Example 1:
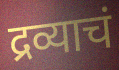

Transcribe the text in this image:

द्रव्याचं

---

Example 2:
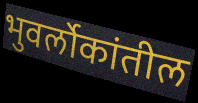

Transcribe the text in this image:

भुवर्लोकांतील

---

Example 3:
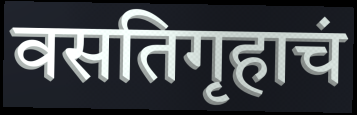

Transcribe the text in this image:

वसतिगृहाचं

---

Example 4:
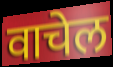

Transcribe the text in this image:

वाचेल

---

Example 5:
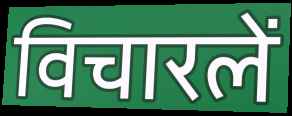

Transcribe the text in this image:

विचारलें